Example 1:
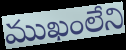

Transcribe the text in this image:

ముఖంలేని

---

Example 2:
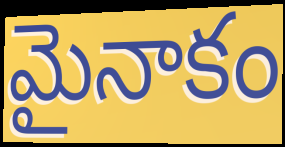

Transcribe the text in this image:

మైనాకం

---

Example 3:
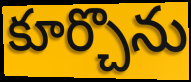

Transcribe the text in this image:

కూర్చొను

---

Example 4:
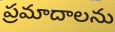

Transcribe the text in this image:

ప్రమాదాలను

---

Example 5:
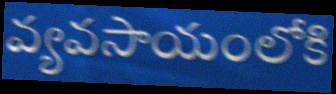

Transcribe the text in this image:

వ్యవసాయంలోకి